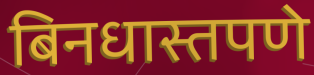
बिनधास्तपणे